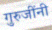
गुरुजींनी